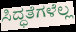
ಸಿದ್ಧತೆಗಳೆಲ್ಲ